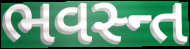
ભવસ્ન્ત